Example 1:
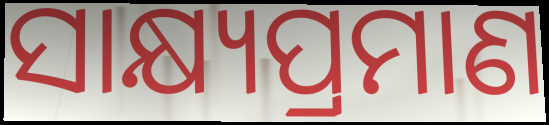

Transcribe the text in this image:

ସାକ୍ଷ୍ୟପ୍ରମାଣ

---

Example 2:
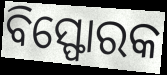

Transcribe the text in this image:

ବିସ୍ଫୋରକ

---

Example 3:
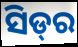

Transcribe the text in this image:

ସିଡ୍‌ର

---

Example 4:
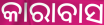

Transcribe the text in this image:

କାରାବାସ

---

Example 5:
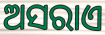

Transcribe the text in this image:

ଅସରାଏ